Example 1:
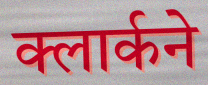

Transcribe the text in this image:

क्लार्कने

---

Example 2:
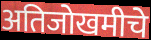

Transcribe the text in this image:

अतिजोखमीचे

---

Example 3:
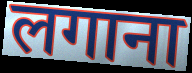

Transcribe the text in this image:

लगाना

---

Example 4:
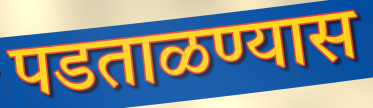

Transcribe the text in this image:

पडताळण्यास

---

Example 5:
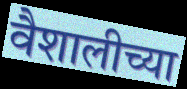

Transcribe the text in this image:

वैशालीच्या